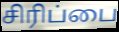
சிரிப்பை